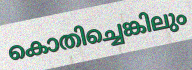
കൊതിച്ചെങ്കിലും